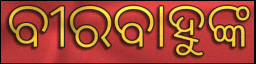
ବୀରବାହୁଙ୍କ